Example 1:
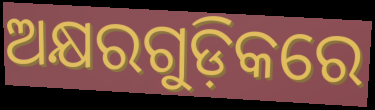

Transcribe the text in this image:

ଅକ୍ଷରଗୁଡ଼ିକରେ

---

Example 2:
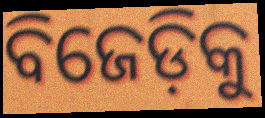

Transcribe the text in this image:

ବିଜେଡ଼ିକୁ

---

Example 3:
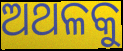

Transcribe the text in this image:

ଅଥଳକୁ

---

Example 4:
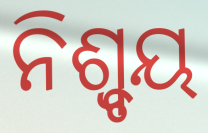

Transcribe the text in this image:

ନିଶ୍ୱ୍ଚୟ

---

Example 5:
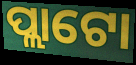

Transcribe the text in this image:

ପ୍ଲାଟୋ